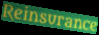
Reinsurance